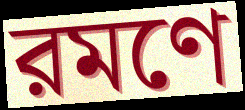
রমণে